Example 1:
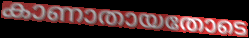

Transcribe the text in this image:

കാണാതായതോടെ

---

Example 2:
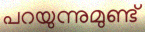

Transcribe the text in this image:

പറയുന്നുമുണ്ട്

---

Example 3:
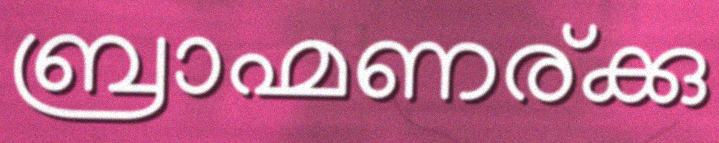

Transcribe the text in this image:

ബ്രാഹ്മണര്ക്കു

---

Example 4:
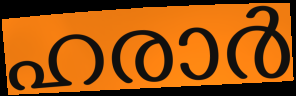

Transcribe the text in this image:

ഹരാർ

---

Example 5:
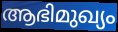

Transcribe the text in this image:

ആഭിമുഖ്യം